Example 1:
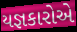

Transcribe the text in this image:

યજ્ઞકારોએ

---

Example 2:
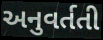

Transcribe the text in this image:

અનુવર્તતી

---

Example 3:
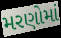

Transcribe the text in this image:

મરણોમાં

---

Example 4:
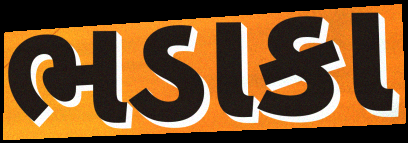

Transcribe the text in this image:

ભડાકા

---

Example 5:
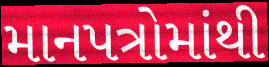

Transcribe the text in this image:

માનપત્રોમાંથી